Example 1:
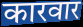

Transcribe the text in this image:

कारवार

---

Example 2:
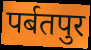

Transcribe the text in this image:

पर्बतपुर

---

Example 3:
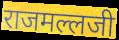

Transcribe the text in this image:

राजमल्लजी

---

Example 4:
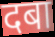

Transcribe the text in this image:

दबा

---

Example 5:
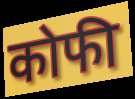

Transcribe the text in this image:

कोफी